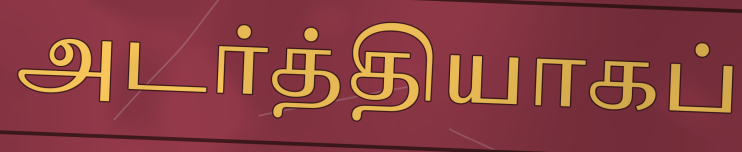
அடர்த்தியாகப்